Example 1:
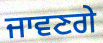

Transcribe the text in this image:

ਜਾਵਣਗੇ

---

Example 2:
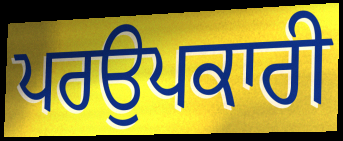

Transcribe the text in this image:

ਪਰਉਪਕਾਰੀ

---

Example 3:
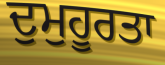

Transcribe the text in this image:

ਦੁਮੁਹੂਰਤਾ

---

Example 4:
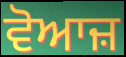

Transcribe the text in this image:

ਵੋਆਜ਼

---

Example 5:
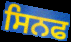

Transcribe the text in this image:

ਸਿਨਫ